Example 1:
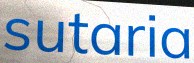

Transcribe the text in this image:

sutaria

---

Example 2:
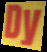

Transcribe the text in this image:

Dy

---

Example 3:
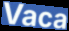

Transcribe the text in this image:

Vaca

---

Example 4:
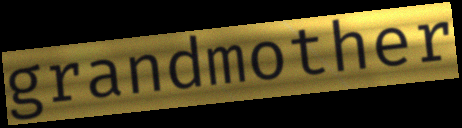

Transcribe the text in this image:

grandmother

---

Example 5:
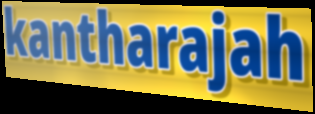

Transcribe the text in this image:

kantharajah